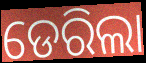
ଡେରିଲା